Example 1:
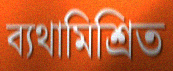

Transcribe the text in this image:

ব্যথামিশ্রিত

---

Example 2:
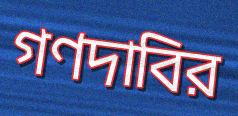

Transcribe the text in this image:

গণদাবির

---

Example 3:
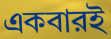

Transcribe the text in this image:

একবারই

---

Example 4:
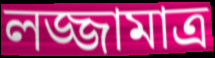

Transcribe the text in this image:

লজ্জামাত্র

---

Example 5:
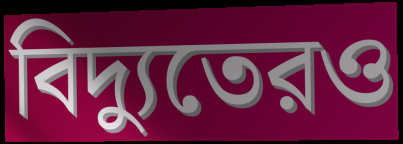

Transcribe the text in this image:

বিদ্যুতেরও